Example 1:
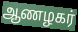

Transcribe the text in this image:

ஆணழகர்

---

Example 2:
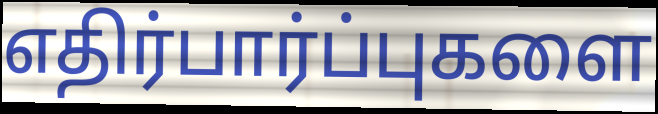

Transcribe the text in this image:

எதிர்பார்ப்புகளை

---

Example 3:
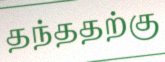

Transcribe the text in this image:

தந்ததற்கு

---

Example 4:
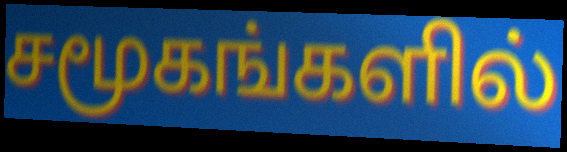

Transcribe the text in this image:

சமூகங்களில்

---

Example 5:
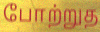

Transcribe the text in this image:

போற்றுத